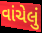
વાંચેલું